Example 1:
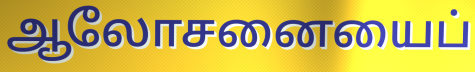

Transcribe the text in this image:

ஆலோசனையைப்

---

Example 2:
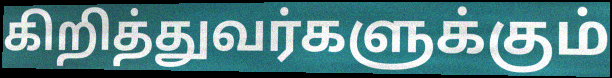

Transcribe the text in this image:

கிறித்துவர்களுக்கும்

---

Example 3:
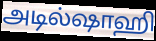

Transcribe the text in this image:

அடில்ஷாஹி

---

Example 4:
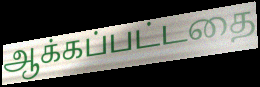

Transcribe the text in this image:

ஆக்கப்பட்டதை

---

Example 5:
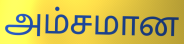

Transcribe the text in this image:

அம்சமான